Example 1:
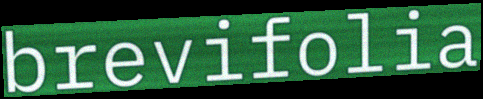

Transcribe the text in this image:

brevifolia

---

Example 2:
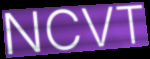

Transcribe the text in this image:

NCVT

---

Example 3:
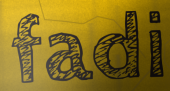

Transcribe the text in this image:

fadi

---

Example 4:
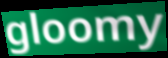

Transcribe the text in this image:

gloomy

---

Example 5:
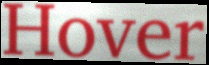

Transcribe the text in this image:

Hover